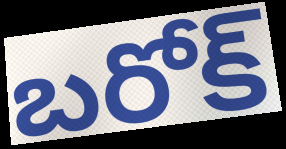
బరోక్